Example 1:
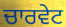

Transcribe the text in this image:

ਚਾਰਵੇਟ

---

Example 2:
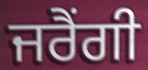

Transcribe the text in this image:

ਜਰੈਂਗੀ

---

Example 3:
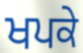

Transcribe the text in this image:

ਖਪਕੇ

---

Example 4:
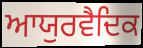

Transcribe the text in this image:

ਆਯੁਰਵੈਦਿਕ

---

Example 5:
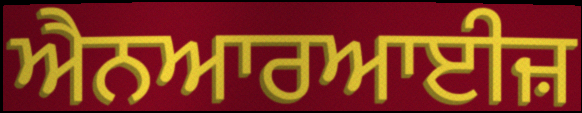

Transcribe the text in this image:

ਐਨਆਰਆਈਜ਼